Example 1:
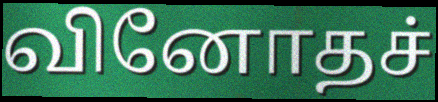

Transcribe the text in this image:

வினோதச்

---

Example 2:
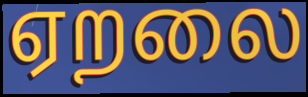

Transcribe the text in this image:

ஏறலை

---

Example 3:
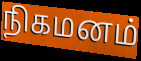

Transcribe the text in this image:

நிகமனம்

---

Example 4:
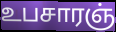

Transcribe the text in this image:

உபசாரஞ்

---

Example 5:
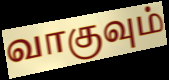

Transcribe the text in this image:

வாகுவும்